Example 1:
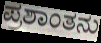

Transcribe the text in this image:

ಪ್ರಶಾಂತನು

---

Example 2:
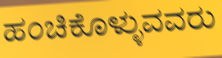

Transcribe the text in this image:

ಹಂಚಿಕೊಳ್ಳುವವರು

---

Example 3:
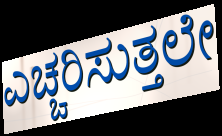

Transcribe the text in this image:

ಎಚ್ಚರಿಸುತ್ತಲೇ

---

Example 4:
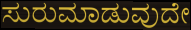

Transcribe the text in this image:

ಸುರುಮಾಡುವುದೇ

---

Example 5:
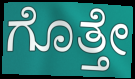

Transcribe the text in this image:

ಗೊತ್ತೇ